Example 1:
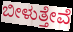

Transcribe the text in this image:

ಬೀಳುತ್ತೇವೆ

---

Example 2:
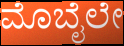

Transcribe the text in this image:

ಮೊಬೈಲೇ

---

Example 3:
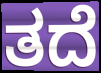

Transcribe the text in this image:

ತದೆ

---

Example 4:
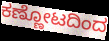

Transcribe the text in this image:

ಕಣ್ಣೋಟದಿಂದ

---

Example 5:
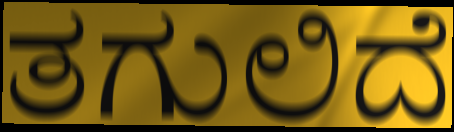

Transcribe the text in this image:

ತಗುಲಿದೆ